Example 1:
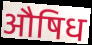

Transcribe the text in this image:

औषिध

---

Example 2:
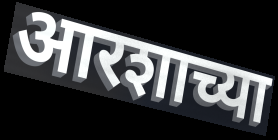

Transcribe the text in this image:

आरशाच्या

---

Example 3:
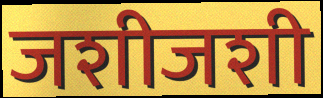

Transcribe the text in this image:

जशीजशी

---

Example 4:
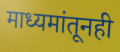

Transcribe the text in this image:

माध्यमांतूनही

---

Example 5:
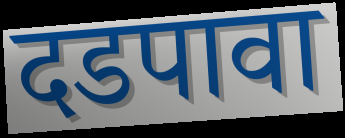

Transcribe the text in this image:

दडपावा